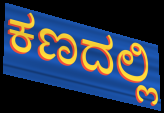
ಕಣದಲ್ಲಿ